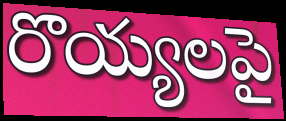
రొయ్యలపై